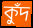
কুঁদ